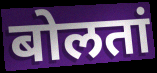
बोलतां